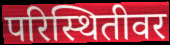
परिस्थितीवर